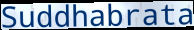
Suddhabrata